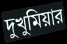
দুখুমিয়ার